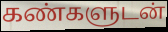
கண்களுடன்